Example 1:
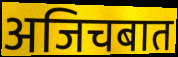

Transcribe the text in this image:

अजिचबात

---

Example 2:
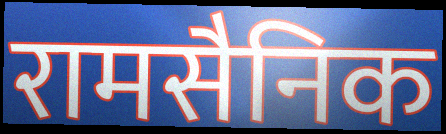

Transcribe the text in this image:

रामसैनिक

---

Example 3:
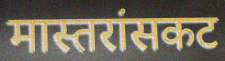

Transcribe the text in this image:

मास्तरांसकट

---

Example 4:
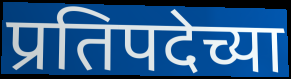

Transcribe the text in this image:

प्रतिपदेच्या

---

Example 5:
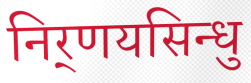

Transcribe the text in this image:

निर्णयसिन्धु